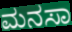
ಮನಸಾ